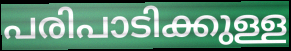
പരിപാടിക്കുള്ള